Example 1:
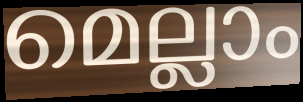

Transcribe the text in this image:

മെല്ലാം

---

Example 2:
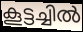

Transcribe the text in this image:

കൂട്ടച്ചിൽ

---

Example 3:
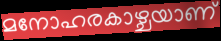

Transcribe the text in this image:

മനോഹരകാഴ്ചയാണ്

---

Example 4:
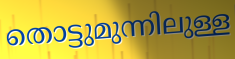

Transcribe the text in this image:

തൊട്ടുമുന്നിലുള്ള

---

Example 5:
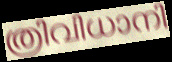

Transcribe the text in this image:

ത്രിവിധാനി